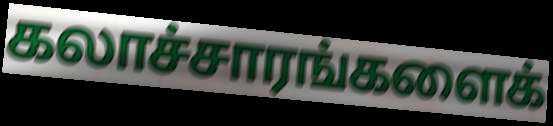
கலாச்சாரங்களைக்